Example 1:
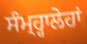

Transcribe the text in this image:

ਸੰਮ੍ਹ੍ਹਾਲੇਹਾਂ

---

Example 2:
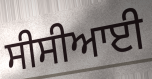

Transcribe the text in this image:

ਸੀਸੀਆਈ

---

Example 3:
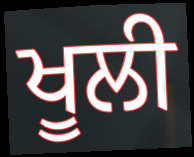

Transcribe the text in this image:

ਖੂਲੀ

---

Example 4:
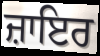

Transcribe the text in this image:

ਜ਼ਾਇਰ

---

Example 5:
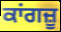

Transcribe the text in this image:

ਕਾਂਗਜ਼ੂ